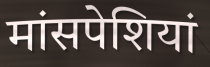
मांसपेशियां